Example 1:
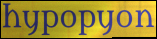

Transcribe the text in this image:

hypopyon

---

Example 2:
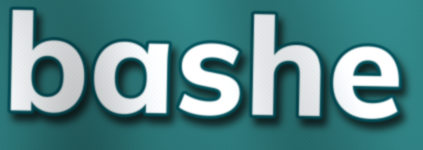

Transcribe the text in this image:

bashe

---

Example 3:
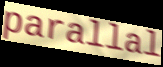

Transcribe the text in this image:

parallal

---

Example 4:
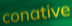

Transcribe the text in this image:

conative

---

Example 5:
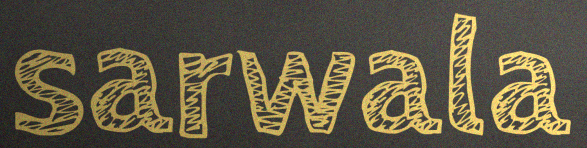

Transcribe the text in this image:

sarwala